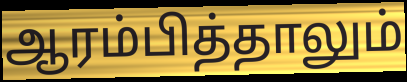
ஆரம்பித்தாலும்